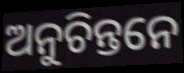
ଅନୁଚିନ୍ତନେ